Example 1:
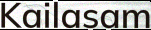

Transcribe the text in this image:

Kailasam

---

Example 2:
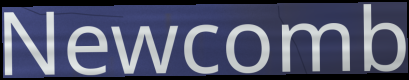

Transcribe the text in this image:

Newcomb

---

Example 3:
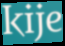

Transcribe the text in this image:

kije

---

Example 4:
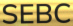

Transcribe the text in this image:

SEBC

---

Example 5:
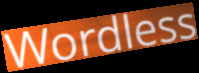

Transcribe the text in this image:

Wordless